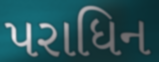
પરાધિન